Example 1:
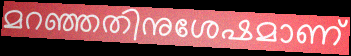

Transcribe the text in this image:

മറഞ്ഞതിനുശേഷമാണ്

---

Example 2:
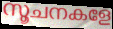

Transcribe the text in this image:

സൂചനകളേ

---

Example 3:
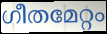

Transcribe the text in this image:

ഗീതമേറ്റം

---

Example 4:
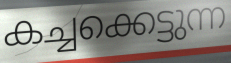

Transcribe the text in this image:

കച്ചക്കെട്ടുന്ന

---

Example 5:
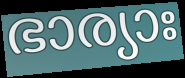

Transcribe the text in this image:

ഭാര്യാഃ